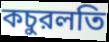
কচুরলতি